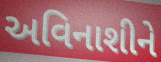
અવિનાશીને